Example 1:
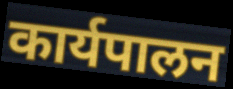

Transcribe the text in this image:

कार्यपालन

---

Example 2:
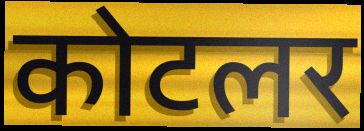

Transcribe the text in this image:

कोटलर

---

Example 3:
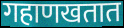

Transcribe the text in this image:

गहाणखतात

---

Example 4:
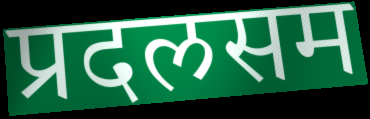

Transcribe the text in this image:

प्रदलसम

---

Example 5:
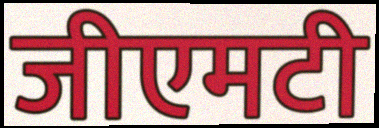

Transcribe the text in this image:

जीएमटी